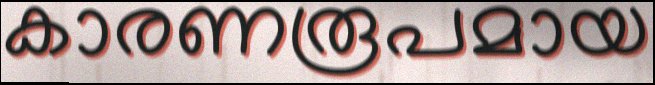
കാരണരൂപമായ